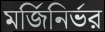
মর্জিনির্ভর